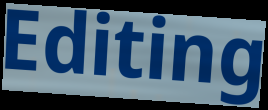
Editing